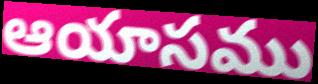
ఆయాసము